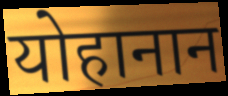
योहानान